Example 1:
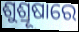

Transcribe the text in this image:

ଶୁଶ୍ରୂଷାରେ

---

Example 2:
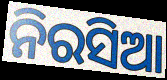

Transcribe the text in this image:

ନିରସିଆ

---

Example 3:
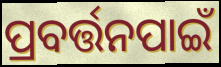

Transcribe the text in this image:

ପ୍ରବର୍ତ୍ତନପାଇଁ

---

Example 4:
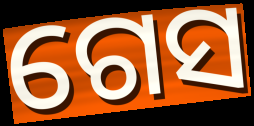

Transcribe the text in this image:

ଗେସ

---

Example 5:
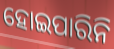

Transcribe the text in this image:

ହୋଇପାରିନି